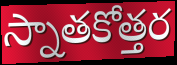
స్నాతకోత్తర